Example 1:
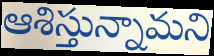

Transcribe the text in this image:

ఆశిస్తున్నామని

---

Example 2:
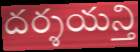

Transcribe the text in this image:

దర్శయన్తి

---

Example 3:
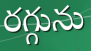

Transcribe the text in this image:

రగ్గును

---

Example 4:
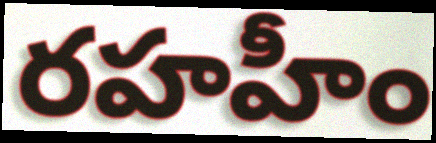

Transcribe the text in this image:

రహహీం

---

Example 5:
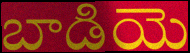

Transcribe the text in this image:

బాడియె